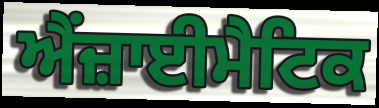
ਐਂਜ਼ਾਈਮੈਟਿਕ